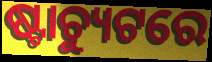
ଷ୍ଟାଚ୍ୟୁଟରେ